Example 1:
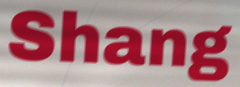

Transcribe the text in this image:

Shang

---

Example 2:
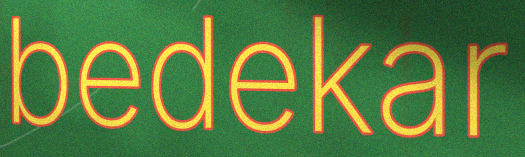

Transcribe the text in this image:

bedekar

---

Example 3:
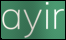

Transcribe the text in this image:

ayir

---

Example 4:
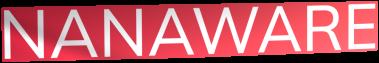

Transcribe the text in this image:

NANAWARE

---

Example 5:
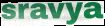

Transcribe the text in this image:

sravya